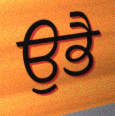
ਉਭੈ